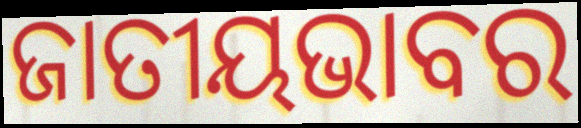
ଜାତୀୟଭାବର